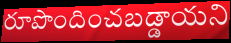
రూపొందించబడ్డాయని